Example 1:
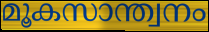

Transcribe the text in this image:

മൂകസാന്ത്വനം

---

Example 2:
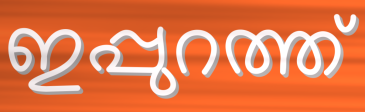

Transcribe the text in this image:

ഇപ്പുറത്ത്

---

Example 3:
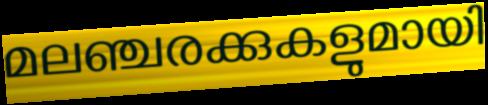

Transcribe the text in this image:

മലഞ്ചരക്കുകളുമായി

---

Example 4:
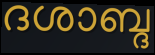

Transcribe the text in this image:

ദശാബ്ദ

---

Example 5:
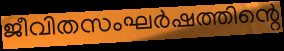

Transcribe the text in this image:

ജീവിതസംഘർഷത്തിന്റെ